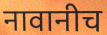
नावानीच